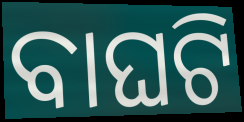
ବାଘଟି